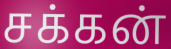
சக்கன்